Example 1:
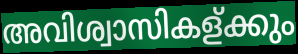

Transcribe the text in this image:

അവിശ്വാസികള്ക്കും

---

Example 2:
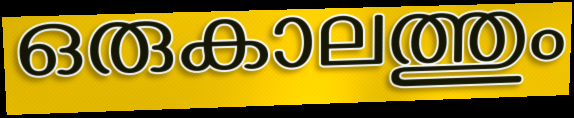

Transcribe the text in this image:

ഒരുകാലത്തും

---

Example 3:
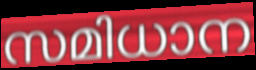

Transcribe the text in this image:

സമിധാന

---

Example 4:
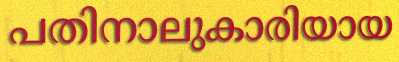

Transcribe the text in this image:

പതിനാലുകാരിയായ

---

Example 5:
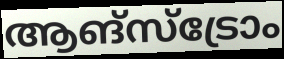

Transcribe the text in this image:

ആങ്സ്ട്രോം